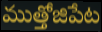
ముత్తోజిపేట